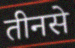
तीनसे